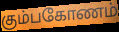
கும்பகோணம்